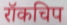
रॉकचिप